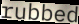
rubbed